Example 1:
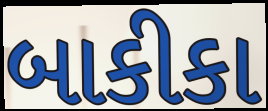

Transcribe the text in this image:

બાકીકા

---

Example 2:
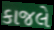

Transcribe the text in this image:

કાજલે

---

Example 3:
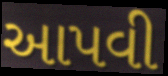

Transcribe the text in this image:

આપવી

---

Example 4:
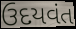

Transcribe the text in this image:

ઉદયવંત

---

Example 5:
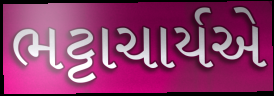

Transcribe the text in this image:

ભટ્ટાચાર્યએ